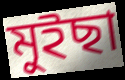
মুইছা